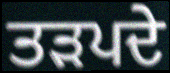
ਤੜਪਦੇ